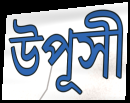
উপূসী